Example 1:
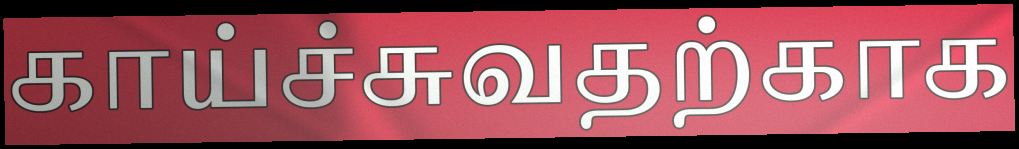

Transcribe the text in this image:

காய்ச்சுவதற்காக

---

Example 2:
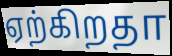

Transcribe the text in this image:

ஏற்கிறதா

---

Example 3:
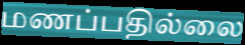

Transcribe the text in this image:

மணப்பதில்லை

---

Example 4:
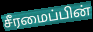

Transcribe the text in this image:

சீரமைப்பின்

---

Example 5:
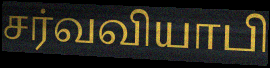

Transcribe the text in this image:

சர்வவியாபி